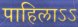
पाहिलाऽऽ